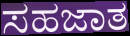
ಸಹಜಾತ